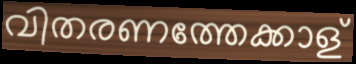
വിതരണത്തേക്കാള്